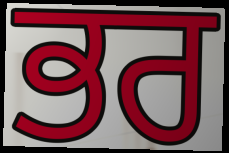
ਭਰ